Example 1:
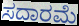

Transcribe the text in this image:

ಸದಾರಮೆ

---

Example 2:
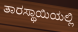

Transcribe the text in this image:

ತಾರಸ್ಥಾಯಿಯಲ್ಲಿ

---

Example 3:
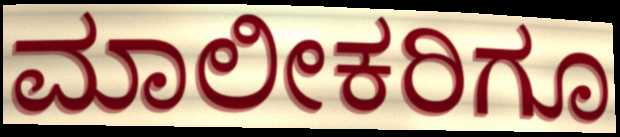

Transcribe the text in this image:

ಮಾಲೀಕರಿಗೂ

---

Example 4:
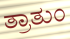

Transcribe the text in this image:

ತ್ರಾತುಂ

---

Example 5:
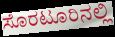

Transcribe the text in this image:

ಸೊರಟೂರಿನಲ್ಲಿ